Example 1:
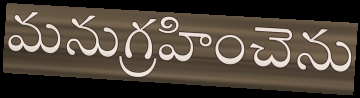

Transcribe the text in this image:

మనుగ్రహించెను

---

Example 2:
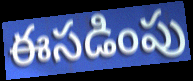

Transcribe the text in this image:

ఈసడింపు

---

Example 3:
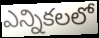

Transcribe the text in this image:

ఎన్నికలలో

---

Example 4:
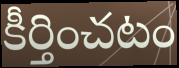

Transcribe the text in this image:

కీర్తించటం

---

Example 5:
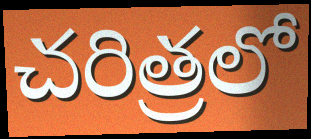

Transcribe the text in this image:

చరిత్రలో